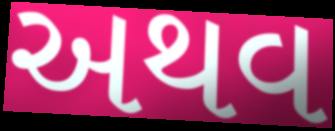
અથવ